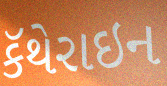
કૅથેરાઇન